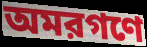
অমরগণে